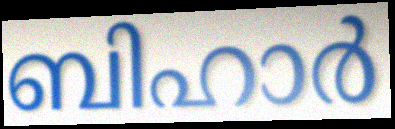
ബിഹാർ